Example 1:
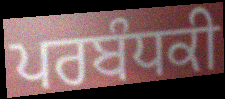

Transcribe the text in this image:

ਪਰਬੰਧਕੀ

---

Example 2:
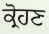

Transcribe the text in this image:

ਕ੍ਰੋਹਣ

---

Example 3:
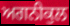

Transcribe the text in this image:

ਅਗਨੀਕੁਲ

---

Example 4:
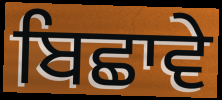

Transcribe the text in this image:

ਬਿਛਾਵੇ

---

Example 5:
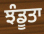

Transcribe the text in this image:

ਝੰਡੂਤਾ